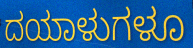
ದಯಾಳುಗಳೂ